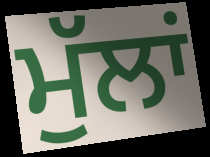
ਮੁੱਲਾਂ